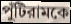
পুঁটিরামকে